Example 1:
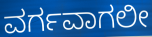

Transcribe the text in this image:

ವರ್ಗವಾಗಲೀ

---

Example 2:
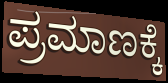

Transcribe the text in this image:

ಪ್ರಮಾಣಕ್ಕೆ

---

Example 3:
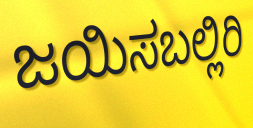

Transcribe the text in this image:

ಜಯಿಸಬಲ್ಲಿರಿ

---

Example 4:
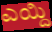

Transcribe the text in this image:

ಎಯ್ದಿ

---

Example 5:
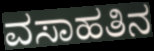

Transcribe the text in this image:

ವಸಾಹತಿನ